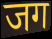
जग